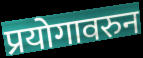
प्रयोगावरुन